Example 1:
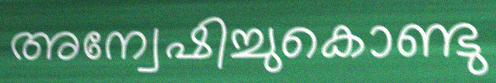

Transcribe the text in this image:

അന്വേഷിച്ചുകൊണ്ടു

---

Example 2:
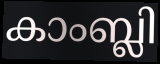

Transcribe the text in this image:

കാംബ്ലി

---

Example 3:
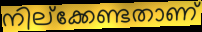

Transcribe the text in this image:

നില്ക്കേണ്ടതാണ്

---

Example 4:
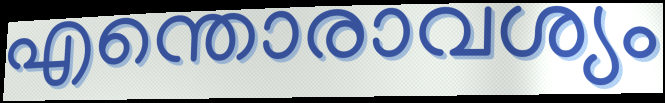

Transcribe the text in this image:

എന്തൊരാവശ്യം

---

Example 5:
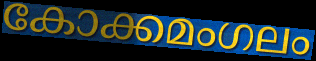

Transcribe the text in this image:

കോക്കമംഗലം